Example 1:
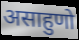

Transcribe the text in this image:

असाहुणो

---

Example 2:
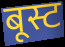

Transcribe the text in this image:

बूस्ट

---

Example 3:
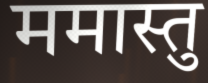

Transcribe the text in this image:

ममास्तु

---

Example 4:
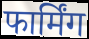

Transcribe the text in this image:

फार्मिंग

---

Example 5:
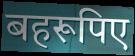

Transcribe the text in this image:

बहरूपिए